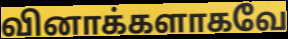
வினாக்களாகவே